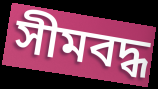
সীমবদ্ধ